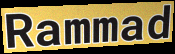
Rammad